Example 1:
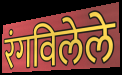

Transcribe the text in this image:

रंगविलेले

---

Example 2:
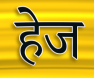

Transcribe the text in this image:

हेज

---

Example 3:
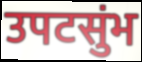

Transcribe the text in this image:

उपटसुंभ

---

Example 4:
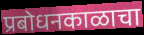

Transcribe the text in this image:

प्रबोधनकाळाचा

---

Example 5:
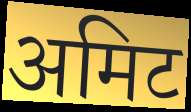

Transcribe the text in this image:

अमिट